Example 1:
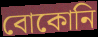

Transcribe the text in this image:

বোকোনি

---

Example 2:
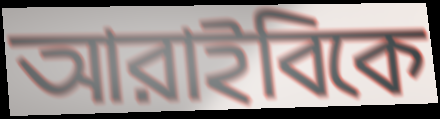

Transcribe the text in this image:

আরাইবিকে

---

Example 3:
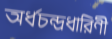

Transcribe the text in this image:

অর্ধচন্দ্রধারিণী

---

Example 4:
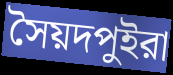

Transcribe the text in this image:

সৈয়দপুইরা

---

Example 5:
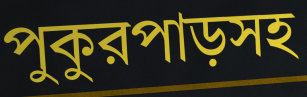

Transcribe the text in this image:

পুকুরপাড়সহ